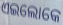
ଏଇଲୋକେ